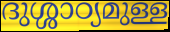
ദുശ്ശാഠ്യമുള്ള